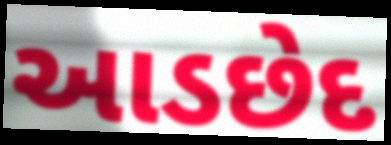
આડછેદ